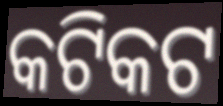
କଟିକଟ